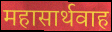
महासार्थवाह